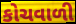
કોચવાળી